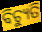
ବିଚ୍ୟୁତି